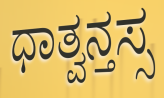
ಧಾತ್ವನ್ತಸ್ಸ